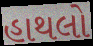
હાથલો